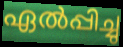
ഏൽപ്പിച്ചു